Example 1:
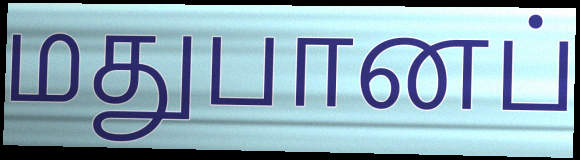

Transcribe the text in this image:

மதுபானப்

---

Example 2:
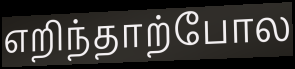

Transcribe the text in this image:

எறிந்தாற்போல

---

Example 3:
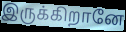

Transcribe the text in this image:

இருக்கிறானே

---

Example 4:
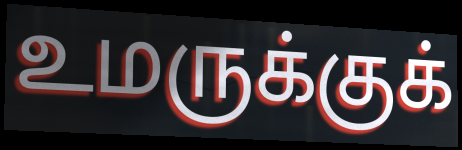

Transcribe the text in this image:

உமருக்குக்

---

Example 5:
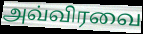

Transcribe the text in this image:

அவ்விரவை